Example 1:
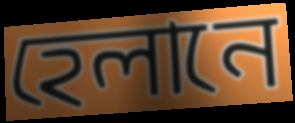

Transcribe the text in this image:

হেলানে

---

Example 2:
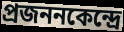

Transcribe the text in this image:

প্রজননকেন্দ্রে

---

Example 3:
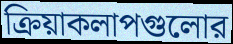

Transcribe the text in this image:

ক্রিয়াকলাপগুলোর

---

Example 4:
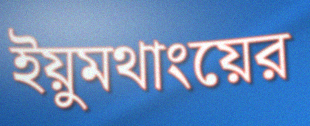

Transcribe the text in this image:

ইয়ুমথাংয়ের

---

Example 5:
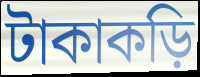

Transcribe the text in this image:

টাকাকড়ি